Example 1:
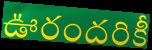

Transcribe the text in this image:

ఊరందరికీ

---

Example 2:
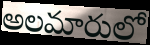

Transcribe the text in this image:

అలమారులో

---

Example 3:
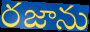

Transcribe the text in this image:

రజాను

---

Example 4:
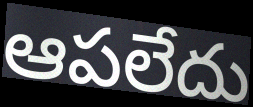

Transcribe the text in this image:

ఆపలేదు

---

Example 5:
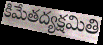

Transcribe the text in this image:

కిమేతద్యక్షమితి